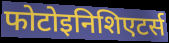
फोटोइनिशिएटर्स